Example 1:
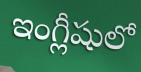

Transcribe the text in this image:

ఇంగ్లీషులో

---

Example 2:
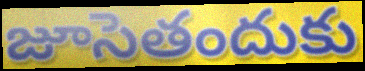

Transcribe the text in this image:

జూసెతందుకు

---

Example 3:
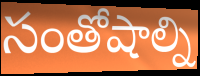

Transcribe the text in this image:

సంతోషాల్ని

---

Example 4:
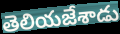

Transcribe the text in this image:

తెలియజేశాడు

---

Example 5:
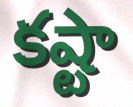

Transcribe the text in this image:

కష్టా